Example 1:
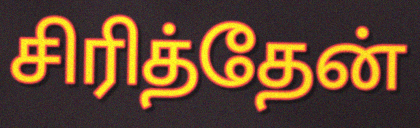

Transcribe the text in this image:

சிரித்தேன்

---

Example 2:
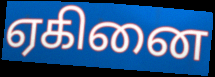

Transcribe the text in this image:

ஏகினை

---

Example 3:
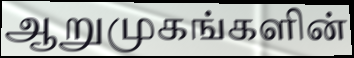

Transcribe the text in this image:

ஆறுமுகங்களின்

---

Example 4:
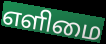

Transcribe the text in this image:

எளிமை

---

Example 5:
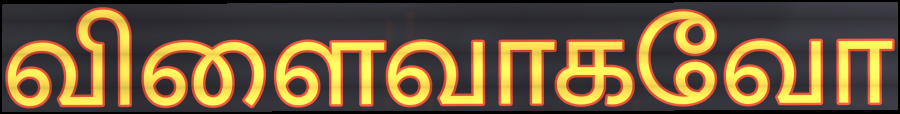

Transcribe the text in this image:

விளைவாகவோ